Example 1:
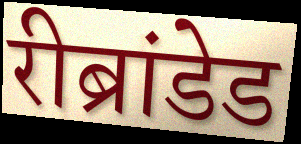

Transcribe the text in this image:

रीब्रांडेड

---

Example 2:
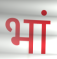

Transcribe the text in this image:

भां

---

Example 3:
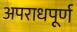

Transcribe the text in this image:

अपराधपूर्ण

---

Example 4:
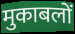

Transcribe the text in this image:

मुकाबलों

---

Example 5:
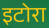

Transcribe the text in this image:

इटोरा